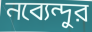
নব্যেন্দুর